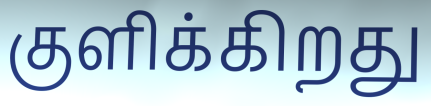
குளிக்கிறது